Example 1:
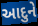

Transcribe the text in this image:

આદુને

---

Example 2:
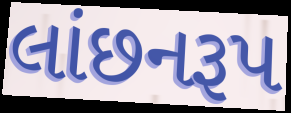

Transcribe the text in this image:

લાંછનરૂપ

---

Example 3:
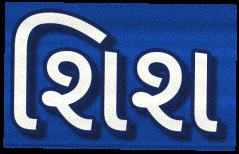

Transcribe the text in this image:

શિશ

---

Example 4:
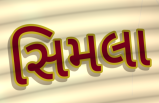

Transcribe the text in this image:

સિમલા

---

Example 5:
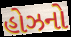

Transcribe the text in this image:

હોઝનો